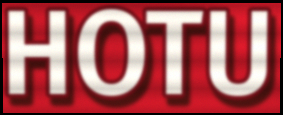
HOTU